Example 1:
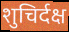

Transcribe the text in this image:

शुचिर्दक्ष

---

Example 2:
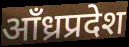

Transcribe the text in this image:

आँध्रप्रदेश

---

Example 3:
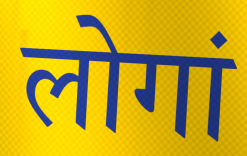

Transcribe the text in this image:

लोगां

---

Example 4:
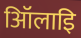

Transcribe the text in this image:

ऑिलाइि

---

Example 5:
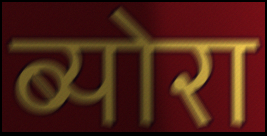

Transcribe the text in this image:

ब्योरा